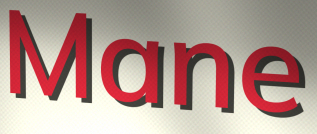
Mane